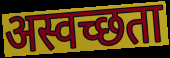
अस्वच्छता